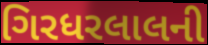
ગિરધરલાલની